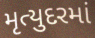
મૃત્યુદરમાં